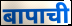
बापाची